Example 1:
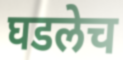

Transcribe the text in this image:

घडलेच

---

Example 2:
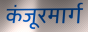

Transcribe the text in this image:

कंजूरमार्ग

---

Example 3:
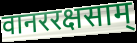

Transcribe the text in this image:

वानररक्षसाम्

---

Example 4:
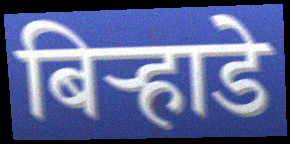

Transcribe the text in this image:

बिऱ्हाडे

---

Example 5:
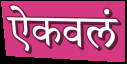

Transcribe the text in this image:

ऐकवलं